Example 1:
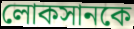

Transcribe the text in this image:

লোকসানকে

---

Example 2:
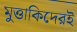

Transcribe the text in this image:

মুত্তাকিদেরই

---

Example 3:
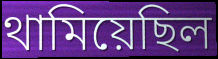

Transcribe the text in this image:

থামিয়েছিল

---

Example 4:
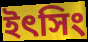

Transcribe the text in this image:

ইৎসিং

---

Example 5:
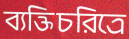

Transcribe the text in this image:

ব্যক্তিচরিত্রে